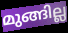
മുങ്ങില്ല